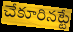
చేకూరినట్టే